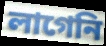
লাগেনি